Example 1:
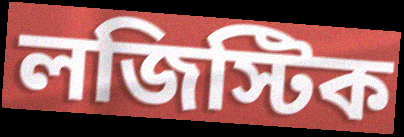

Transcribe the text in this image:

লজিস্টিক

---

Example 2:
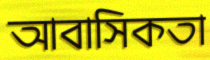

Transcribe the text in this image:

আবাসিকতা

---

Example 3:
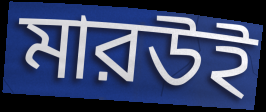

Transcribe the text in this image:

মারউই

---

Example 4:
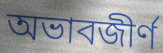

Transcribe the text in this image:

অভাবজীর্ণ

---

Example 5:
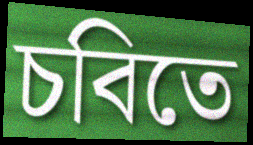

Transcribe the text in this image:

চবিতে